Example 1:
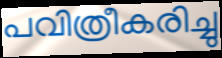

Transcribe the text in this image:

പവിത്രീകരിച്ചു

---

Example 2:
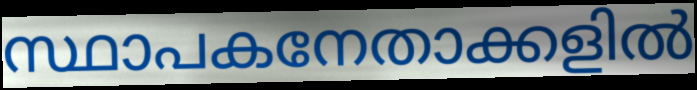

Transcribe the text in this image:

സ്ഥാപകനേതാക്കളിൽ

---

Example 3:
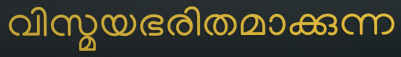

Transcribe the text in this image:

വിസ്മയഭരിതമാക്കുന്ന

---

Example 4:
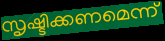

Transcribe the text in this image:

സൃഷ്ടിക്കണമെന്ന്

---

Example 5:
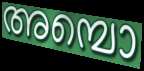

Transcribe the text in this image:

അമ്പൊ